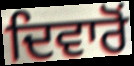
ਦਿਵਾਰੋਂ